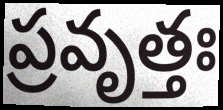
ప్రవృత్తః